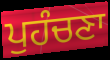
ਪੁਹੰਚਣਾ